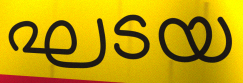
ഘടയ